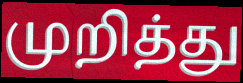
முறித்து